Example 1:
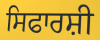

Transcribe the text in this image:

ਸਿਫਾਰਸ਼ੀ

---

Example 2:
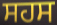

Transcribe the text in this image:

ਸਹਸ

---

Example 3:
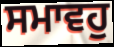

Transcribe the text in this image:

ਸਮਾਵਹੁ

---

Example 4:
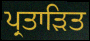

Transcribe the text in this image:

ਪ੍ਰਤਾੜਿਤ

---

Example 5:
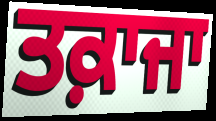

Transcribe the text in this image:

ਤਕ਼ਾਜਾ